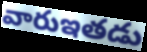
వారుఇతడు